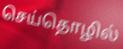
செய்தொழில்